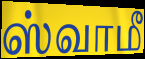
ஸ்வாமீ